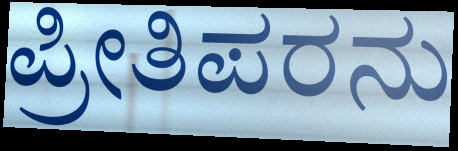
ಪ್ರೀತಿಪರನು